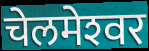
चेलमेश्‍वर